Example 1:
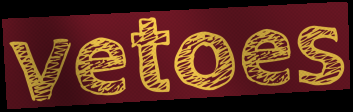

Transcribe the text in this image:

vetoes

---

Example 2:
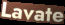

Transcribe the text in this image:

Lavate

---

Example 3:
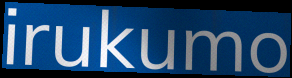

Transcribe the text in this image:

irukumo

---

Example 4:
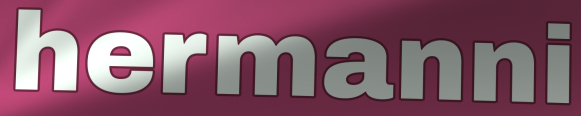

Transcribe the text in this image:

hermanni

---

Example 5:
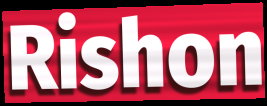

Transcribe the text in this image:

Rishon